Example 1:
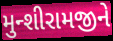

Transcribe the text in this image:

મુન્શીરામજીને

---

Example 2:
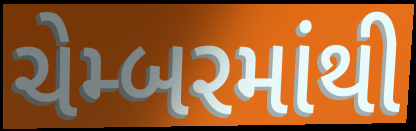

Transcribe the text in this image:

ચેમ્બરમાંથી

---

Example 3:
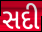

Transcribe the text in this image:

સદી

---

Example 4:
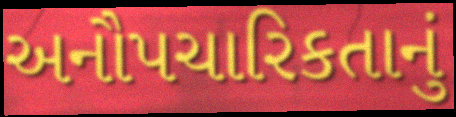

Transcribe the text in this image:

અનૌપચારિકતાનું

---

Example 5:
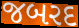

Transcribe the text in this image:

જબરદ